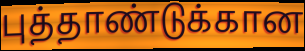
புத்தாண்டுக்கான